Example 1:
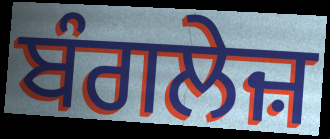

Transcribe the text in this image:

ਬੰਗਲੇਜ਼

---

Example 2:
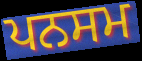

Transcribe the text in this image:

ਪਨਸਮ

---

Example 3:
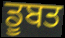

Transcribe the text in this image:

ਡੂਬਤ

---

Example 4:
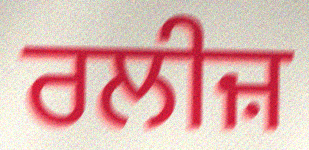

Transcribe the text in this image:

ਰਲੀਜ਼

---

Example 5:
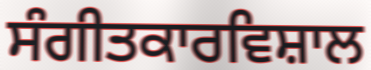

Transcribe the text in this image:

ਸੰਗੀਤਕਾਰਵਿਸ਼ਾਲ